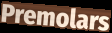
Premolars